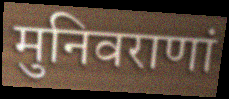
मुनिवराणां